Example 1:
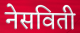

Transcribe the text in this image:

नेसविती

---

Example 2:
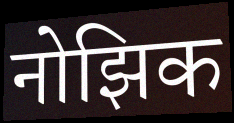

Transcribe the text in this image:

नोझिक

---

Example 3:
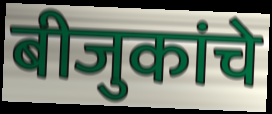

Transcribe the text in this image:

बीजुकांचे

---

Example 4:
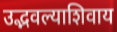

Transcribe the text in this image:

उद्भवल्याशिवाय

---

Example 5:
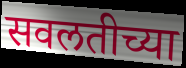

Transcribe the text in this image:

सवलतीच्या